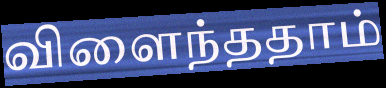
விளைந்ததாம்